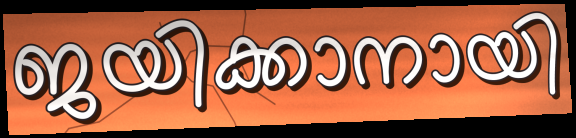
ജയിക്കാനായി